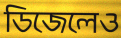
ডিজেলেও